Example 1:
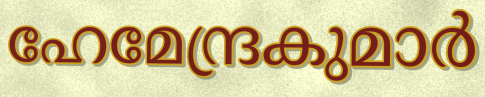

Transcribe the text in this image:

ഹേമേന്ദ്രകുമാർ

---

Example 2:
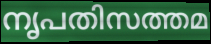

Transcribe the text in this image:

നൃപതിസത്തമ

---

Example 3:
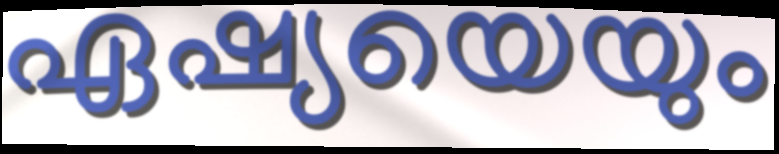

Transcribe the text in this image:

ഏഷ്യയെയും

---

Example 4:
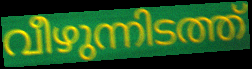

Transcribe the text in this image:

വീഴുന്നിടത്ത്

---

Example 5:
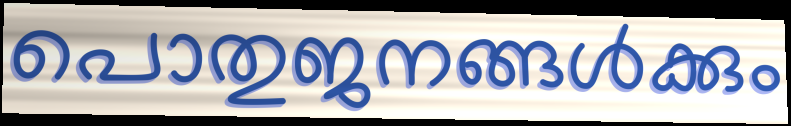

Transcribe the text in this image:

പൊതുജനങ്ങൾക്കും